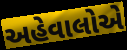
અહેવાલોએ